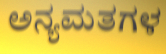
ಅನ್ಯಮತಗಳ